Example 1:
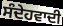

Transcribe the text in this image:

ਸੰਦੇਹਵਾਦੀ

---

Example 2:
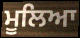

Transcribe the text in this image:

ਮੂਲਿਆ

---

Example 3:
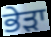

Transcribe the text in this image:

ਭੇੜਾ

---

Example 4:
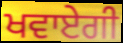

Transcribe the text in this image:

ਖਵਾਏਗੀ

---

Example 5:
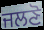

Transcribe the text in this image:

ਜਲਣੋ